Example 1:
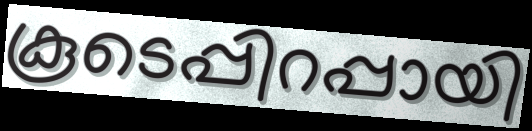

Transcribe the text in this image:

കൂടെപ്പിറപ്പായി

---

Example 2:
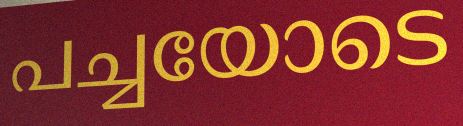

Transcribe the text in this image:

പച്ചയോടെ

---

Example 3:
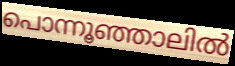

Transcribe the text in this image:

പൊന്നൂഞ്ഞാലിൽ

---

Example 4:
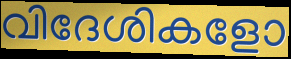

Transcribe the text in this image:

വിദേശികളോ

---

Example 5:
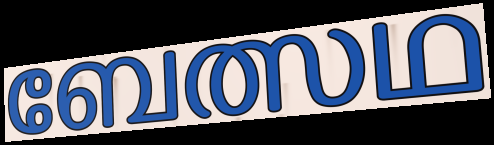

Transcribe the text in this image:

ബേത്സഥ